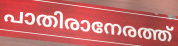
പാതിരാനേരത്ത്